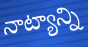
నాట్యాన్ని